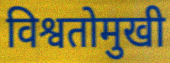
विश्वतोमुखी